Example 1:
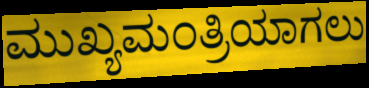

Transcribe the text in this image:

ಮುಖ್ಯಮಂತ್ರಿಯಾಗಲು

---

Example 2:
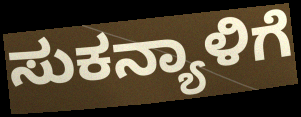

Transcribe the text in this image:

ಸುಕನ್ಯಾಳಿಗೆ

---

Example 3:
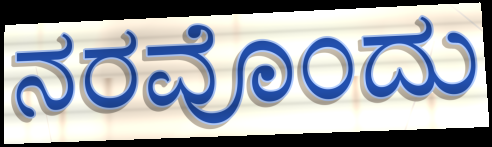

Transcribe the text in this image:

ನರವೊಂದು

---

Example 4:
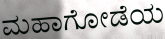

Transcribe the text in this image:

ಮಹಾಗೋಡೆಯ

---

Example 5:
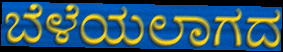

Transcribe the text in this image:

ಬೆಳೆಯಲಾಗದ